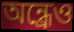
অন্ধ্রেও